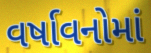
વર્ષાવનોમાં